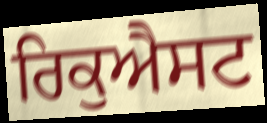
ਰਿਕੁਐਸਟ